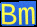
Bm